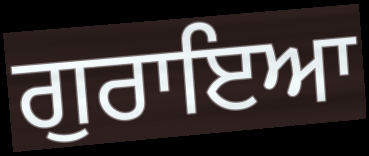
ਗੁਰਾਇਆ